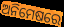
ଅନିମେଷରେ